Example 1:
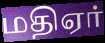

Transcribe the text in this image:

மதிஏர்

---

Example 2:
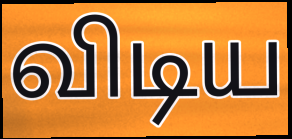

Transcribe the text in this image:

விடிய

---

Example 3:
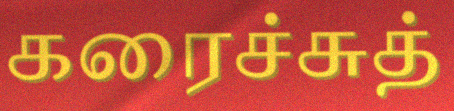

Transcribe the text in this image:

கரைச்சுத்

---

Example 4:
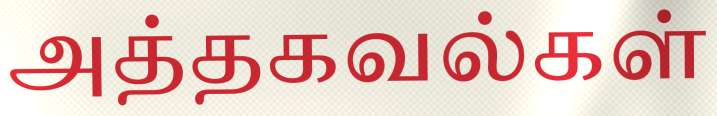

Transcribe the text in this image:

அத்தகவல்கள்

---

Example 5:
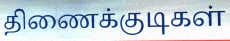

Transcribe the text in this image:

திணைக்குடிகள்